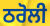
ਠਰੋਲੀ